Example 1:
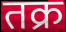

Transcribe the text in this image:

तक्र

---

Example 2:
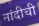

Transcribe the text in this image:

नांदीची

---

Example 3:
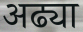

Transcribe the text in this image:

अढ्या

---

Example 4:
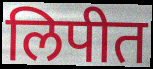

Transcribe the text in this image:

लिपीत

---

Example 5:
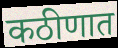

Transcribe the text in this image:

कठीणात